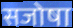
सजोषा